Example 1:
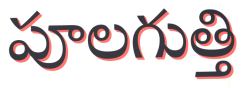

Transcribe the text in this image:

పూలగుత్తి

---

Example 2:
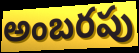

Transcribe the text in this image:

అంబరపు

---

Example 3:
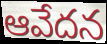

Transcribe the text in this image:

ఆవేదన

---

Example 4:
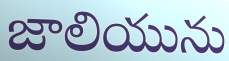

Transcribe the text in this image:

జాలియును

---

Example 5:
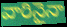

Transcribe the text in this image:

వారినైనా